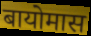
बायोमास